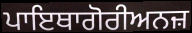
ਪਾਇਥਾਗੋਰੀਅਨਜ਼